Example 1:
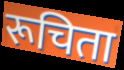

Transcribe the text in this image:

रूचिता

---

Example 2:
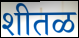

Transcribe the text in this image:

शीतळ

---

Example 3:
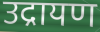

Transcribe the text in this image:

उद्रायण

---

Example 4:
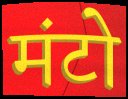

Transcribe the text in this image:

मंटो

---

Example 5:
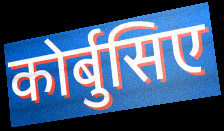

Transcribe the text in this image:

कोर्बुसिए